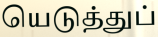
யெடுத்துப்